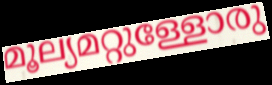
മൂല്യമറ്റുള്ളോരു